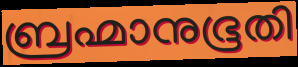
ബ്രഹ്മാനുഭൂതി